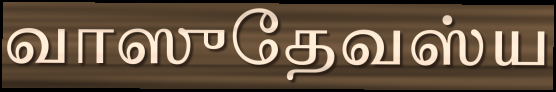
வாஸுதேவஸ்ய